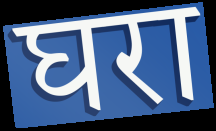
घरा